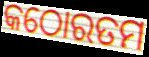
କଠୋରତମ